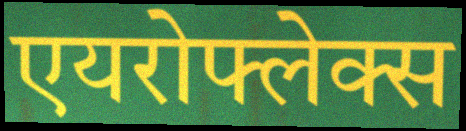
एयरोफ्लेक्स